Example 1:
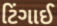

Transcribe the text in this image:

ટિંગાઈ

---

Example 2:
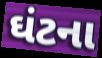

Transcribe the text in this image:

ઘંટના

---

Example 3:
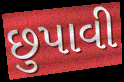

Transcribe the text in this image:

છુપાવી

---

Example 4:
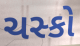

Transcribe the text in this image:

ચસ્કો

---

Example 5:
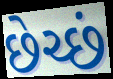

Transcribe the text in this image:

છેચ્છં